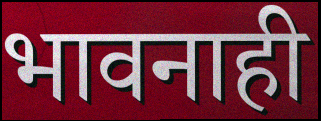
भावनाही